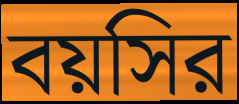
বয়সির